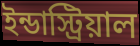
ইন্ডাস্ট্রিয়াল